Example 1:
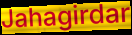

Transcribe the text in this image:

Jahagirdar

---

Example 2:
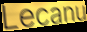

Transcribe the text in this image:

Lecanu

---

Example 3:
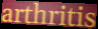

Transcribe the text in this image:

arthritis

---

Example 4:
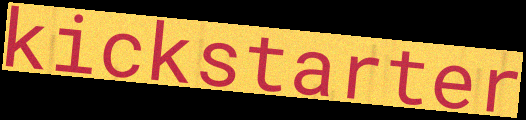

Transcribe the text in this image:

kickstarter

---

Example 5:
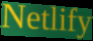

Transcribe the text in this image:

Netlify